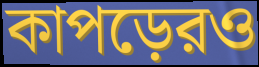
কাপড়েরও